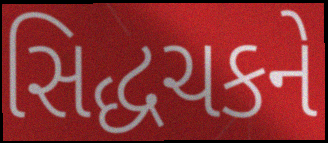
સિદ્ધચકને